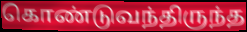
கொண்டுவந்திருந்த